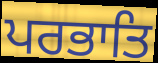
ਪਰਭਾਤਿ